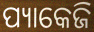
ପ୍ୟାକେଜି